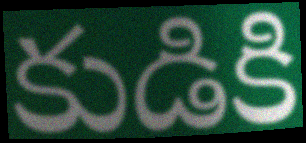
కుడికి